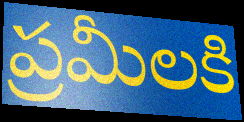
ప్రమీలకి